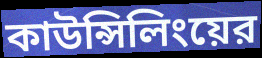
কাউন্সিলিংয়ের